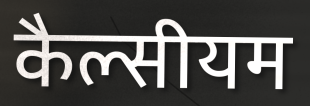
कैल्सीयम